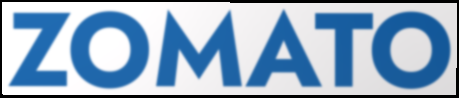
ZOMATO